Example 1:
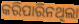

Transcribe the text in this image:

କରିପାରିନଥିଲା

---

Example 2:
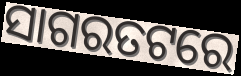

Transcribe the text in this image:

ସାଗରତଟରେ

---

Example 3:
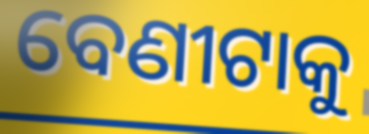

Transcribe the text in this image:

ବେଣୀଟାକୁ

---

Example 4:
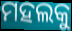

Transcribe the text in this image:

ମହଲକୁ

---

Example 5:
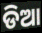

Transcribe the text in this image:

ଡିଆ